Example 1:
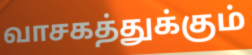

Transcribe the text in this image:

வாசகத்துக்கும்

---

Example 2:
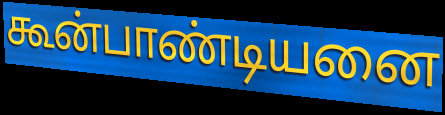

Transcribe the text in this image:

கூன்பாண்டியனை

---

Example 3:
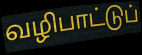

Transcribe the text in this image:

வழிபாட்டுப்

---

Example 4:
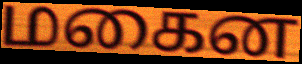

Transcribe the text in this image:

மகைன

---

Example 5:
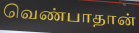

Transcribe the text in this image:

வெண்பாதான்